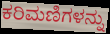
ಕರಿಮಣಿಗಳನ್ನು